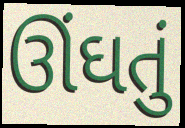
ઊંઘતું